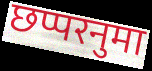
छप्परनुमा